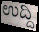
ಉದ್ದಿ